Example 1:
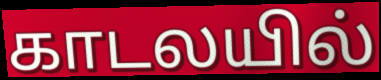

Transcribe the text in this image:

காடலயில்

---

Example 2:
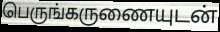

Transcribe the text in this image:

பெருங்கருணையுடன்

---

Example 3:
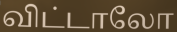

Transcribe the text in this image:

விட்டாலோ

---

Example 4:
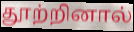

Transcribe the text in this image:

தூற்றினால்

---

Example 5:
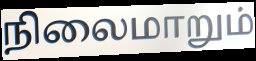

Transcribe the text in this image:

நிலைமாறும்